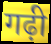
गढ़ी